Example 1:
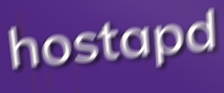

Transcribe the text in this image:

hostapd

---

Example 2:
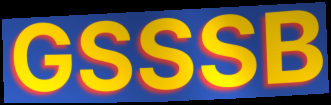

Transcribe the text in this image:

GSSSB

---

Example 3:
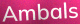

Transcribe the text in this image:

Ambals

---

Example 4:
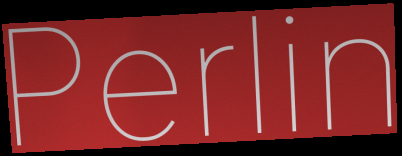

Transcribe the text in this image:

Perlin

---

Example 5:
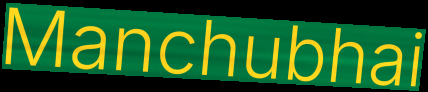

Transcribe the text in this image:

Manchubhai